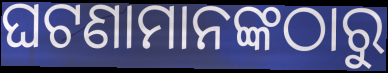
ଘଟଣାମାନଙ୍କଠାରୁ